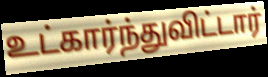
உட்கார்ந்துவிட்டார்